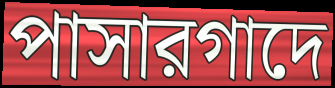
পাসারগাদে